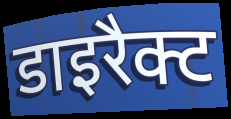
डाइरैक्ट